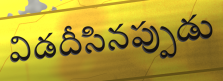
విడదీసినప్పుడు